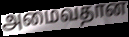
அமைவதான